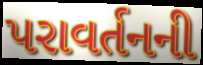
પરાવર્તનની